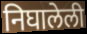
निघालेली